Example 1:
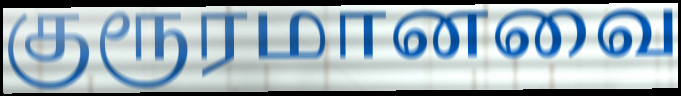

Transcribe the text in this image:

குரூரமானவை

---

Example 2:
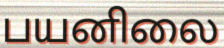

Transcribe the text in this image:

பயனிலை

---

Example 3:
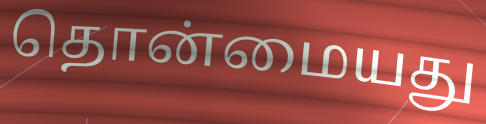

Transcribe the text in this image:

தொன்மையது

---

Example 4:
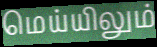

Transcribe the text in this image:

மெய்யிலும்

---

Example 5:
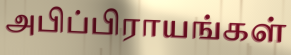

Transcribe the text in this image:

அபிப்பிராயங்கள்